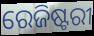
ରେଜିଷ୍ଟରୀ